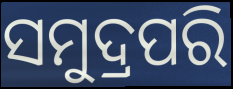
ସମୁଦ୍ରପରି